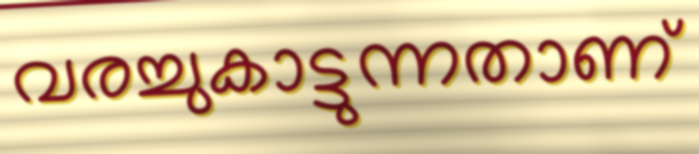
വരച്ചുകാട്ടുന്നതാണ്